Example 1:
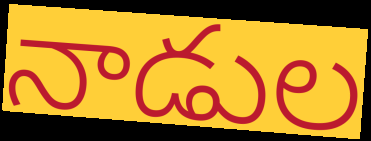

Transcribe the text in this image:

నాడుల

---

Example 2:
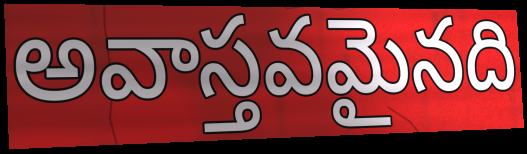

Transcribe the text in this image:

అవాస్తవమైనది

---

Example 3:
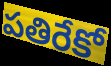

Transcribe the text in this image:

పతిరేకో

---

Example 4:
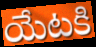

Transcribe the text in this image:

యేటకి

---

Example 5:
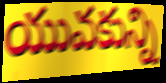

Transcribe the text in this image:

యువకున్ని